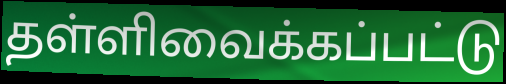
தள்ளிவைக்கப்பட்டு